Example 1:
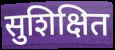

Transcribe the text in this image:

सुशिक्षित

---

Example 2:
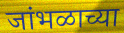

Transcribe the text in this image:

जांभळाच्या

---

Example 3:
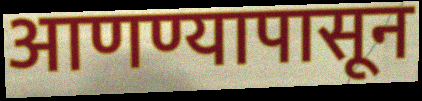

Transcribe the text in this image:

आणण्यापासून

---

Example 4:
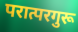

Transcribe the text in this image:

परात्परगुरू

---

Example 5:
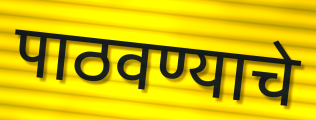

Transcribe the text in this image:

पाठवण्याचे